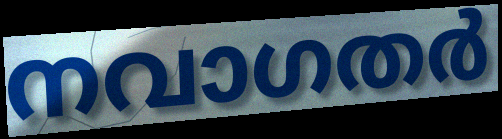
നവാഗതർ